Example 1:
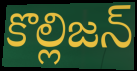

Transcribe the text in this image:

కొల్లిజన్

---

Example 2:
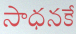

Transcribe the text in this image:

సాధనకే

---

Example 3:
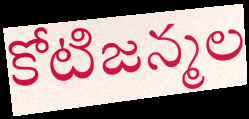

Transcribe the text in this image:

కోటిజన్మల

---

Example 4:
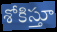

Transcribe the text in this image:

శోకిస్తూ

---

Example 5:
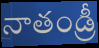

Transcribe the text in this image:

నాతండ్రీ